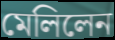
মেলিলেন